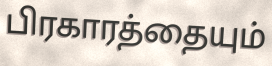
பிரகாரத்தையும்